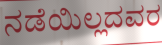
ನಡೆಯಿಲ್ಲದವರ